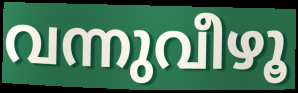
വന്നുവീഴൂ